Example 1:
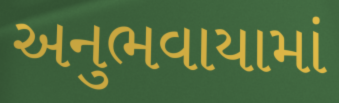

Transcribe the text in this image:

અનુભવાયામાં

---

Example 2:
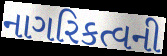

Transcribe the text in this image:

નાગરિકત્વની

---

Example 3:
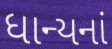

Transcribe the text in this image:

ધાન્યનાં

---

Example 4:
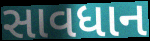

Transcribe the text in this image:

સાવધાન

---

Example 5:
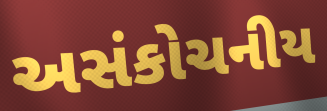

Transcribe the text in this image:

અસંકોચનીય